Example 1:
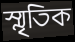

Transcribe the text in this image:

স্মৃতিক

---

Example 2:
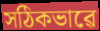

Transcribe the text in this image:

সঠিকভাৱে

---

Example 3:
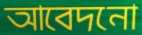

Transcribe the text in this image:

আবেদনো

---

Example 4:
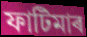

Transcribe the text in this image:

ফাটিমাৰ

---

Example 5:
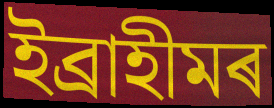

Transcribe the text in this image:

ইব্ৰাহীমৰ